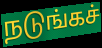
நடுங்கச்